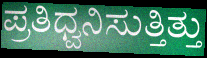
ಪ್ರತಿಧ್ವನಿಸುತ್ತಿತ್ತು